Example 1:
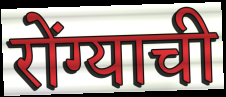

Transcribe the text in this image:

रोंग्याची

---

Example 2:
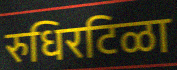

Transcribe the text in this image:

रुधिरटिळा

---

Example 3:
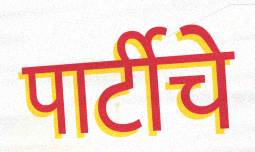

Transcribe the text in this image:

पार्टीचे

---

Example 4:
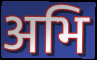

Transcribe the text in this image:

अभि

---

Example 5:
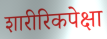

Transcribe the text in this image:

शारीरिकपेक्षा